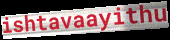
ishtavaayithu